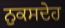
ਨੁਕਸਦੇਹ